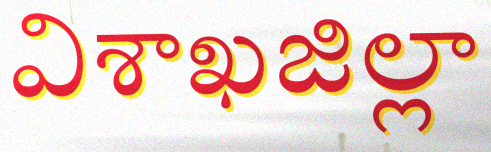
విశాఖజిల్లా